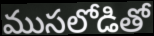
ముసలోడితో